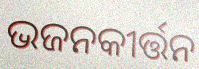
ଭଜନକୀର୍ତ୍ତନ